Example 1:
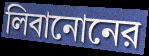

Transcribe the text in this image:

লিবানোনের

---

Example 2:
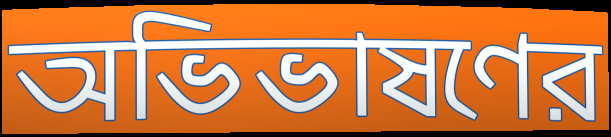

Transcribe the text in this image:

অভিভাষণের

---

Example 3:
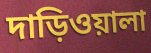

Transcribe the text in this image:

দাড়িওয়ালা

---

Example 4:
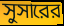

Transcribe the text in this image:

সুসারের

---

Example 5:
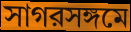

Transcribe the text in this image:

সাগরসঙ্গমে